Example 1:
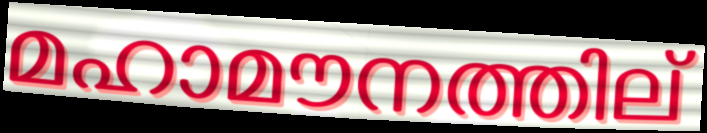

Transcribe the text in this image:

മഹാമൗനത്തില്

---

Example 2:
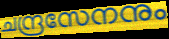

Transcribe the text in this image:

ചന്ദ്രസേനനും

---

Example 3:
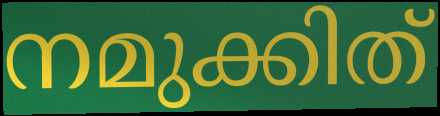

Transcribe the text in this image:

നമുക്കിത്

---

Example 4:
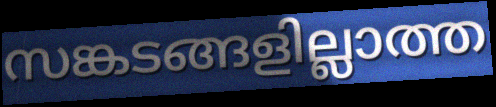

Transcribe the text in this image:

സങ്കടങ്ങളില്ലാത്ത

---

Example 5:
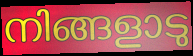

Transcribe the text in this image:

നിങ്ങളാടു